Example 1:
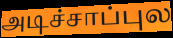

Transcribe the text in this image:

அடிச்சாப்புல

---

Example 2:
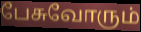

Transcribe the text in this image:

பேசுவோரும்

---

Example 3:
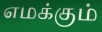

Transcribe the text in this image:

எமக்கும்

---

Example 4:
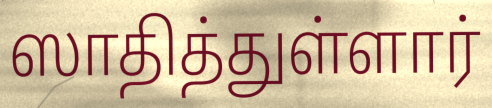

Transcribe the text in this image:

ஸாதித்துள்ளார்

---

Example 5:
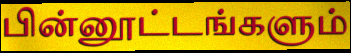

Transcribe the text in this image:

பின்னூட்டங்களும்